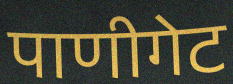
पाणीगेट